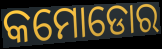
କମୋଡୋର